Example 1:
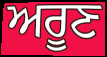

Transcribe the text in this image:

ਅਰੂਣ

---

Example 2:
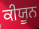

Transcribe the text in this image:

ਕੀਯੂਨ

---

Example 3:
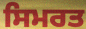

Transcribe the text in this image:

ਸਿਮਰਤ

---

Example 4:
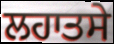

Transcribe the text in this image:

ਲਹਾਤਸੇ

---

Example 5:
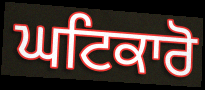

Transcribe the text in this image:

ਘਟਿਕਾਰੋ